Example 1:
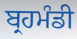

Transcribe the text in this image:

ਬ੍ਰਹਮੰਡੀ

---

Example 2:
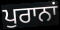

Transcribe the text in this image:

ਪੁਰਾਨਾਂ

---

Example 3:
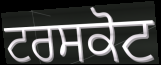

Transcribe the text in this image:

ਟਰਸਕੋਟ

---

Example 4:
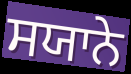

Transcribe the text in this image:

ਸਯਾਨੇ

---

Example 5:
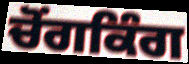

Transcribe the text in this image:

ਚੋਂਗਕਿੰਗ